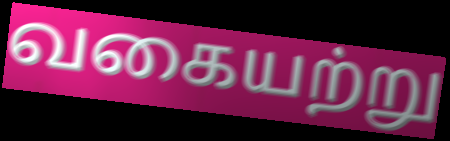
வகையற்று